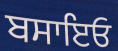
ਬਸਾਇਓ